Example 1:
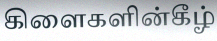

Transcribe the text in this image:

கிளைகளின்கீழ்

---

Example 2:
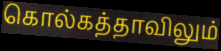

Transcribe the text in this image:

கொல்கத்தாவிலும்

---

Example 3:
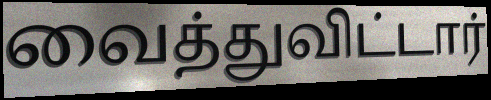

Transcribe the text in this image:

வைத்துவிட்டார்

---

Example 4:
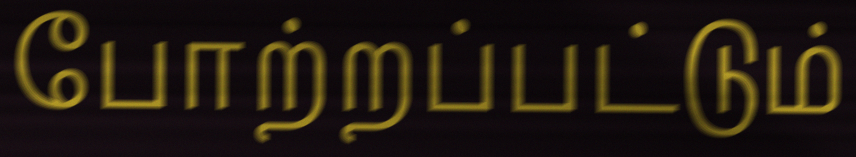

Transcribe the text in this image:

போற்றப்பட்டும்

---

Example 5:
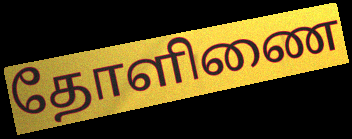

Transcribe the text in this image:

தோளிணை